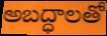
అబద్ధాలతో